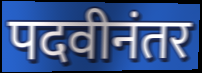
पदवीनंतर